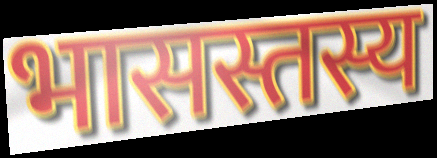
भासस्तस्य